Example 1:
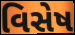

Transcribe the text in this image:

વિસેષ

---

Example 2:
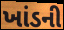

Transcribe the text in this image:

ખાંડની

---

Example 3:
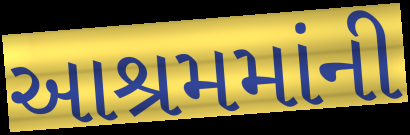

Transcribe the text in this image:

આશ્રમમાંની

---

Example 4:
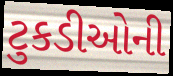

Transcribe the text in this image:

ટુકડીઓની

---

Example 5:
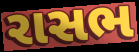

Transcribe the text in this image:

રાસભ